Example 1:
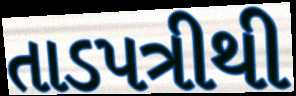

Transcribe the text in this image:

તાડપત્રીથી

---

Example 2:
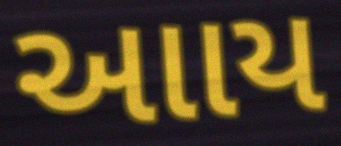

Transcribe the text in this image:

આાય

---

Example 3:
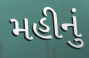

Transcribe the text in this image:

મહીનું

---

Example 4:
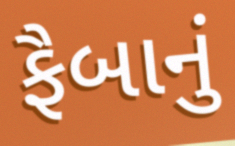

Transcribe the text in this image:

ફૈબાનું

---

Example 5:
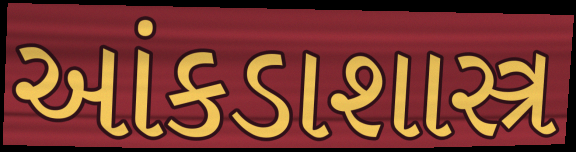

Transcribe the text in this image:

આંકડાશાસ્ત્ર